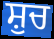
ਸ਼ੁਚ